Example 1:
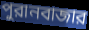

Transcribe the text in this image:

পুরানবাজার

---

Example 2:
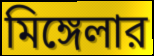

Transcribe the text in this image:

মিঙ্গেলার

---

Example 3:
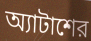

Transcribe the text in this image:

অ্যাটাশের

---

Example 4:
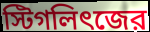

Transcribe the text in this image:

স্টিগলিৎজের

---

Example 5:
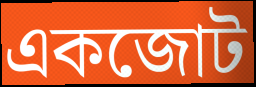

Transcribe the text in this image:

একজোট